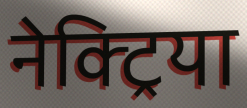
नेक्ट्रिया